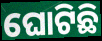
ଘୋଟିଛି